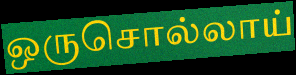
ஒருசொல்லாய்